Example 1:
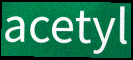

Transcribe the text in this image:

acetyl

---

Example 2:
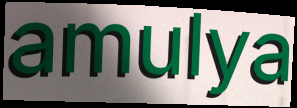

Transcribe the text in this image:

amulya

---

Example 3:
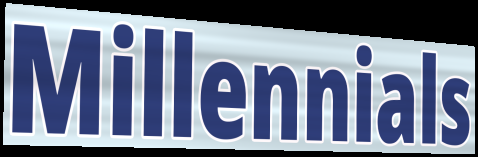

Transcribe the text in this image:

Millennials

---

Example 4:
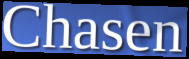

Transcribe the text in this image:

Chasen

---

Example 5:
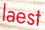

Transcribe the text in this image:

laest